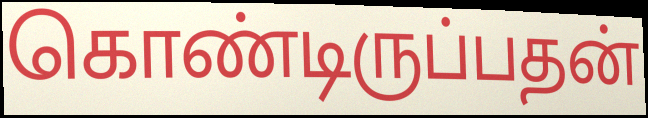
கொண்டிருப்பதன்